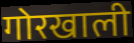
गोरखाली